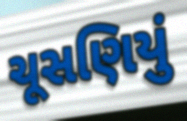
ચૂસણિયું